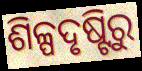
ଶିଳ୍ପଦୃଷ୍ଟିରୁ